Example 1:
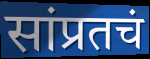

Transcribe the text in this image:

सांप्रतचं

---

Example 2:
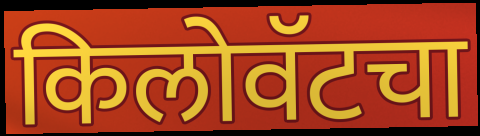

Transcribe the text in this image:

किलोवॅटचा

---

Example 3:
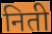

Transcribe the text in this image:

निती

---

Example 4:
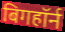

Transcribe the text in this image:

बिगहॉर्न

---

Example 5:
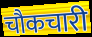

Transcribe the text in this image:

चौकचारी